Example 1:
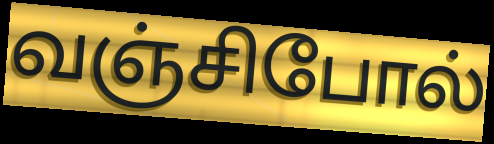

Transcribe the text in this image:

வஞ்சிபோல்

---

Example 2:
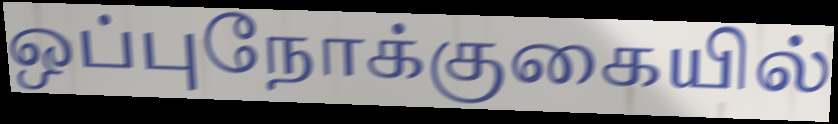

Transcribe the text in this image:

ஒப்புநோக்குகையில்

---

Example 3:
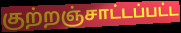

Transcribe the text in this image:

குற்றஞ்சாட்டப்பட்ட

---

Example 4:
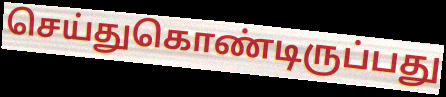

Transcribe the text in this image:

செய்துகொண்டிருப்பது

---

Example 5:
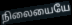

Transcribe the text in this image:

நிலையையே